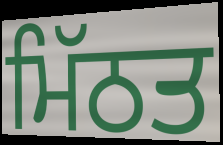
ਮਿੱਠਤ